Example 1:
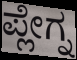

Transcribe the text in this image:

ಪ್ಲೇಗ್ನ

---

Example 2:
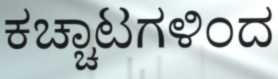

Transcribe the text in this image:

ಕಚ್ಚಾಟಗಳಿಂದ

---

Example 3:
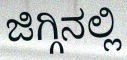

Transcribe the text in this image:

ಜಿಗ್ಗಿನಲ್ಲಿ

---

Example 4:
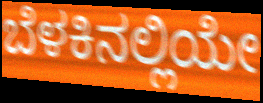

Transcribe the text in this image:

ಬೆಳಕಿನಲ್ಲಿಯೇ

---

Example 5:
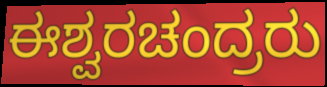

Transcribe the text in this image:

ಈಶ್ವರಚಂದ್ರರು